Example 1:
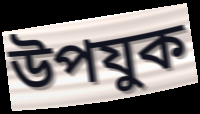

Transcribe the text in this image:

উপযুক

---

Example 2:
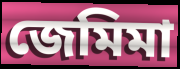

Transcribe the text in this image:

জেমিমা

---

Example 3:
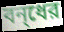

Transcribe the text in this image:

বন্‌ধের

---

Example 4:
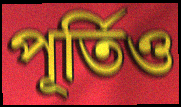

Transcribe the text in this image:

পূর্তিও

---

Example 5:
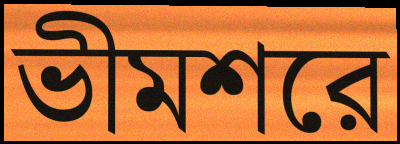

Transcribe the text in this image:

ভীমশরে